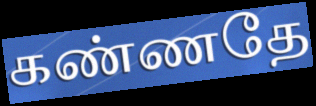
கண்ணதே